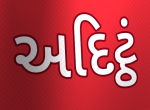
અદિટ્ઠં